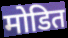
मोडित